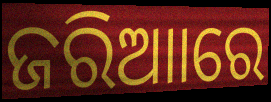
ଜରିଆାରେ